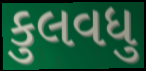
કુલવધુ